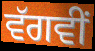
ਵੱਗਵੀਂ